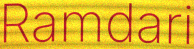
Ramdari